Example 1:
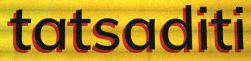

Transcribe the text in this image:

tatsaditi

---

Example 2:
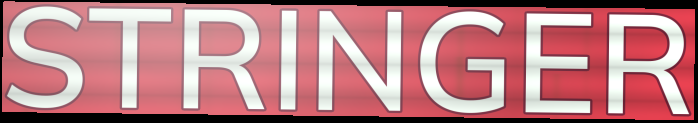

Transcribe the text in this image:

STRINGER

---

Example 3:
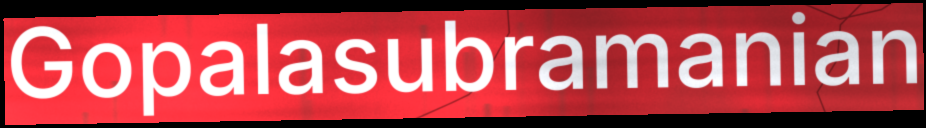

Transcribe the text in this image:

Gopalasubramanian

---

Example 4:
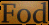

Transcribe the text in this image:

Fod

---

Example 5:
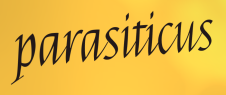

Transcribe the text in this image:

parasiticus